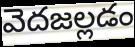
వెదజల్లడం